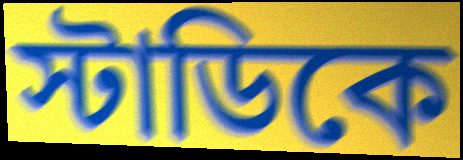
স্টাডিকে